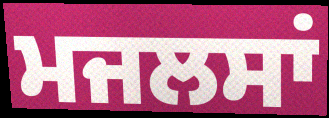
ਮਜਲਸਾਂ